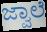
ಜ್ವಾಲೆ